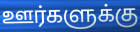
ஊர்களுக்கு